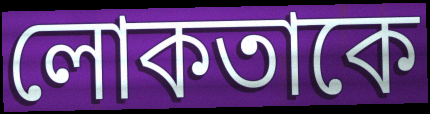
লোকতাকে